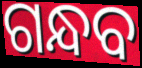
ଗନ୍ଧବ